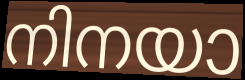
നിനയാ